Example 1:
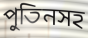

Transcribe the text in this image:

পুতিনসহ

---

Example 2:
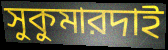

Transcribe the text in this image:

সুকুমারদাই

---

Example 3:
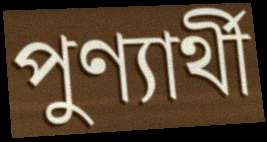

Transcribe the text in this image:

পুণ্যার্থী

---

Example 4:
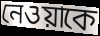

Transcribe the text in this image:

নেওয়াকে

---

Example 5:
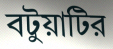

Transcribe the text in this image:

বটুয়াটির